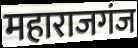
महाराजगंज